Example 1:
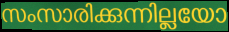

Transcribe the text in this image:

സംസാരിക്കുന്നില്ലയോ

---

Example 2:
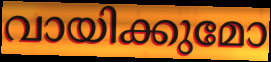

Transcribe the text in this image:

വായിക്കുമോ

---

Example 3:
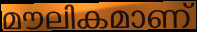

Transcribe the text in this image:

മൗലികമാണ്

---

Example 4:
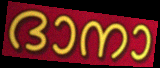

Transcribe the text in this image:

ദാനാ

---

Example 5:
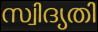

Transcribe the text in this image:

സ്വിദ്യതി